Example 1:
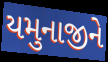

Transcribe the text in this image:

યમુનાજીને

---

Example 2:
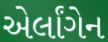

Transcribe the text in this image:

એર્લાંગેન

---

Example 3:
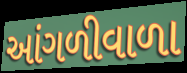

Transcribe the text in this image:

આંગળીવાળા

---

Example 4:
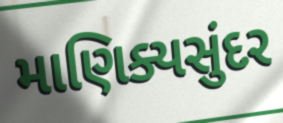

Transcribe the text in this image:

માણિક્યસુંદર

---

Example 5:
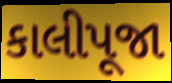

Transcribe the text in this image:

કાલીપૂજા